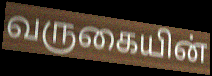
வருகையின்